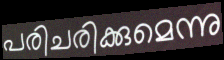
പരിചരിക്കുമെന്നു